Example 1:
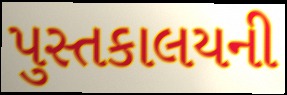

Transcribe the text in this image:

પુસ્તકાલયની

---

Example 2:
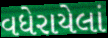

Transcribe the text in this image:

વધેરાયેલાં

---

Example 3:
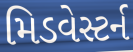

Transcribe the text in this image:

મિડવેસ્ટર્ન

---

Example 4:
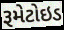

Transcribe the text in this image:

રૂમેટોઇડ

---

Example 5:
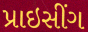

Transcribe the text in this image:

પ્રાઇસીંગ